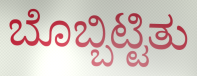
ಬೊಬ್ಬಿಟ್ಟಿತು